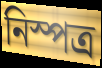
নিস্পত্র